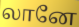
லானே